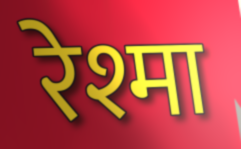
रेश्मा